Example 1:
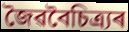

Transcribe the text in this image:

জৈৱবৈচিত্ৰ্যৰ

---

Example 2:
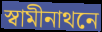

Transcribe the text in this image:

স্বামীনাথনে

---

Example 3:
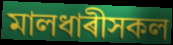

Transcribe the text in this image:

মালধাৰীসকল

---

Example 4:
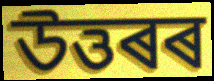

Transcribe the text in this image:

উত্তৰৰ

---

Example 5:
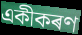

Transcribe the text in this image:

একীকৰণ